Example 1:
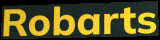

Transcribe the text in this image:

Robarts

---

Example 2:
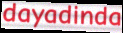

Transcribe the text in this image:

dayadinda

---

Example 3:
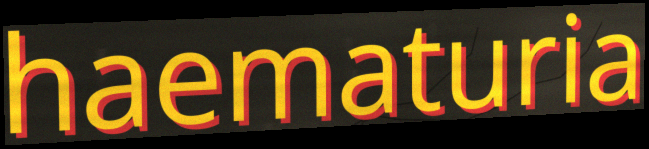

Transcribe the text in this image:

haematuria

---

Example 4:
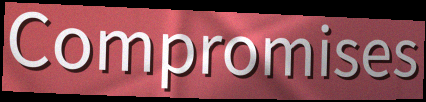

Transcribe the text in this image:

Compromises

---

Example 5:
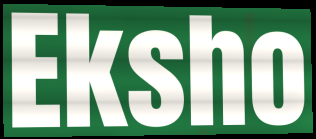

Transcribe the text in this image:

Eksho